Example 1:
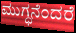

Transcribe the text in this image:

ಮುಗ್ಧನೆಂದರೆ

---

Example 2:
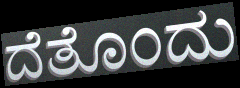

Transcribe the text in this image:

ದೆತೊಂದು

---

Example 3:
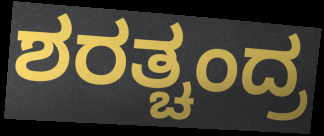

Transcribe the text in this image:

ಶರತ್ಚಂದ್ರ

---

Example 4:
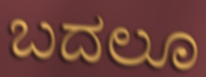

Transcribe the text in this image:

ಬದಲೂ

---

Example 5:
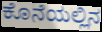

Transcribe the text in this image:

ಕೊನೆಯಲ್ಲಿನ